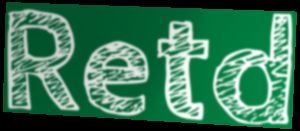
Retd